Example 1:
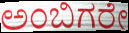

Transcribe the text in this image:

ಅಂಬಿಗರೇ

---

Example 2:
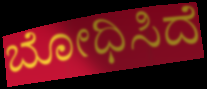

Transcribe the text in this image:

ಬೋಧಿಸಿದೆ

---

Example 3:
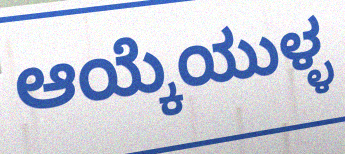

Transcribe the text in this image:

ಆಯ್ಕೆಯುಳ್ಳ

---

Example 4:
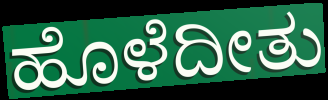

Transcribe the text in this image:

ಹೊಳೆದೀತು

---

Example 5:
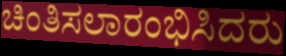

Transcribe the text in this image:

ಚಿಂತಿಸಲಾರಂಭಿಸಿದರು